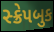
સ્ક્રેપબુક